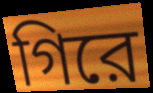
গিরে